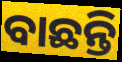
ବାଛନ୍ତି